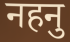
नहनु